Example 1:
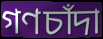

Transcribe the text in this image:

গণচাঁদা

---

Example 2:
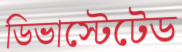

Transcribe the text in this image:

ডিভাস্টেটেড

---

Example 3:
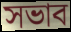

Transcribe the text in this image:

সভাব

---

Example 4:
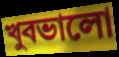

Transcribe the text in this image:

খুবভালো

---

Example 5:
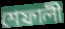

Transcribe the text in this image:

শেফালী